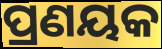
ପ୍ରଣୟକ